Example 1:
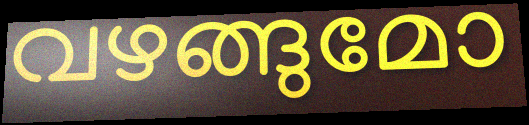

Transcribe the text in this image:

വഴങ്ങുമോ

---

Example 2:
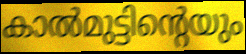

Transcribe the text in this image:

കാൽമുട്ടിന്റെയും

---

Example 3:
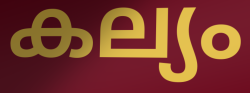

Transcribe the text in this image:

കല്യം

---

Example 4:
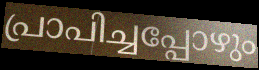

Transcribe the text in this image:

പ്രാപിച്ചപ്പോഴും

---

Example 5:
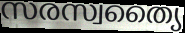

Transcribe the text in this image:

സരസ്വത്യൈ